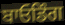
ਬਾਓਡਿੰਗ